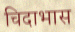
चिदाभास